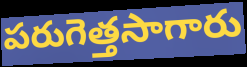
పరుగెత్తసాగారు